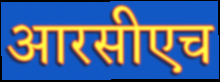
आरसीएच